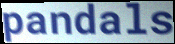
pandals